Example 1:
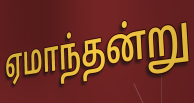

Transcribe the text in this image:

ஏமாந்தன்று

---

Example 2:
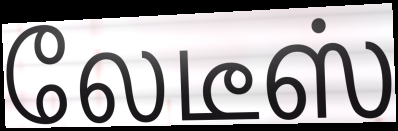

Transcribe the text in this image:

லேடீஸ்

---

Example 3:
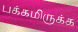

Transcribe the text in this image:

பக்கமிருக்க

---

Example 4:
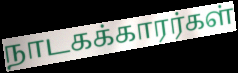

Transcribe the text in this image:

நாடகக்காரர்கள்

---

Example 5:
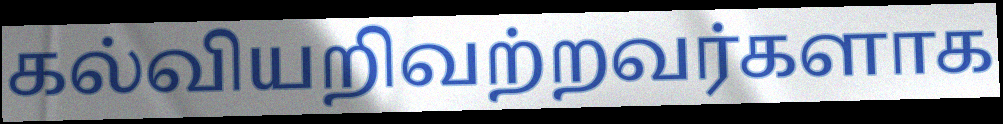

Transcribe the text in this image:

கல்வியறிவற்றவர்களாக